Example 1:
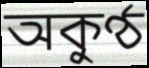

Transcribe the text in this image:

অকুণ্ঠ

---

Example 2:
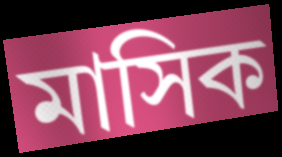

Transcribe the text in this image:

মাসিক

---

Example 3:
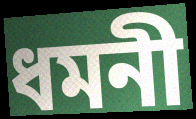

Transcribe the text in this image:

ধমনী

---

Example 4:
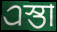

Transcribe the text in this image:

এস্তা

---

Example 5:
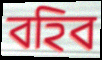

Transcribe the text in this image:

বহিব